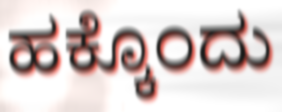
ಹಕ್ಕೊಂದು